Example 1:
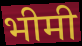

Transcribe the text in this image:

भीमी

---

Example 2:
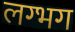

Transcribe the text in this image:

लग्भग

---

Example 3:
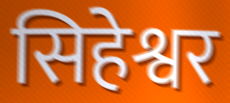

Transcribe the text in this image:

सिहेश्वर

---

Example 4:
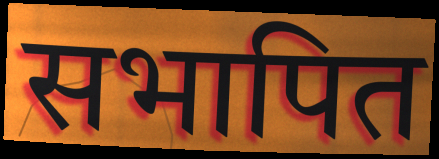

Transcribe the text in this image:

सभापित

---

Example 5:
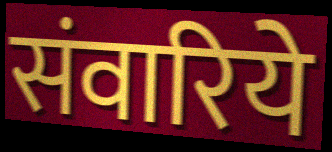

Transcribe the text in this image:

संवारिये